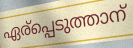
ഏര്പ്പെടുത്താന്